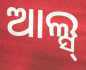
ଆଲ୍ସ୍